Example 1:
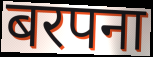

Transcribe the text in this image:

बरपना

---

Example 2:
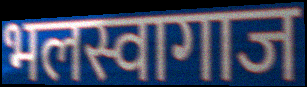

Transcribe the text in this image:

भलस्वागाज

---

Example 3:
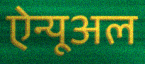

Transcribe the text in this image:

ऐन्यूअल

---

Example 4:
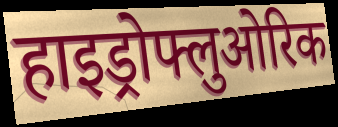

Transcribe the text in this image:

हाइड्रोफ्लुओरिक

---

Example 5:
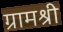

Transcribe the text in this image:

ग्रामश्री